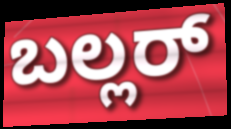
ಬಲ್ಲರ್